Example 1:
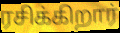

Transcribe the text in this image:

ரசிக்கிறார்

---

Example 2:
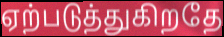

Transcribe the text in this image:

ஏற்படுத்துகிறதே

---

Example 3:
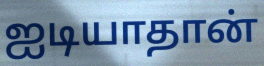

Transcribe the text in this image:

ஐடியாதான்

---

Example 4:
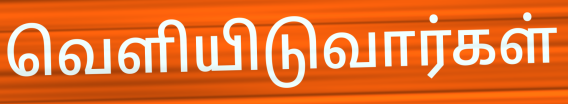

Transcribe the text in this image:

வெளியிடுவார்கள்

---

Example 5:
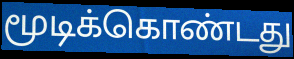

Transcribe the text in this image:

மூடிக்கொண்டது